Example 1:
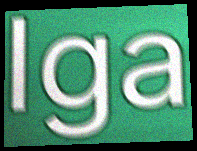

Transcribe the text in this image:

Iga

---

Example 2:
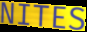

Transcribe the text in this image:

NITES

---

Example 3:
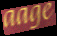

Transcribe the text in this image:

aage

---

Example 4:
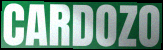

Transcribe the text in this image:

CARDOZO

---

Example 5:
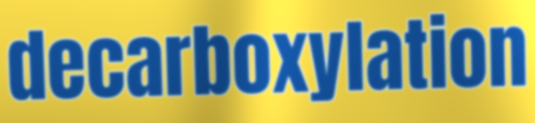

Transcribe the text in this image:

decarboxylation